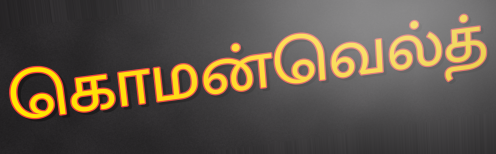
கொமன்வெல்த்